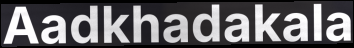
Aadkhadakala